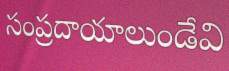
సంప్రదాయాలుండేవి